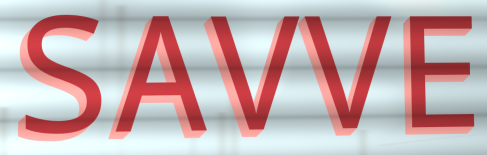
SAVVE